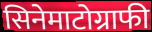
सिनेमाटोग्राफी